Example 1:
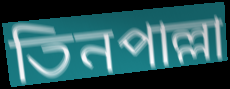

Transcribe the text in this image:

তিনপাল্লা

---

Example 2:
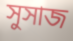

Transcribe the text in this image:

সুসাজ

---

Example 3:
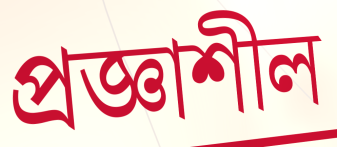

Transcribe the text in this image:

প্রজ্ঞাশীল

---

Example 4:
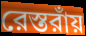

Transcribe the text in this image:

রেস্তরাঁয়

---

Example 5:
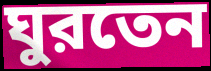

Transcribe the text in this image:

ঘুরতেন